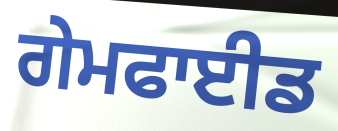
ਗੇਮਫਾਈਡ